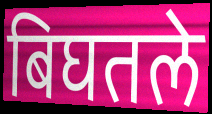
बिघतले